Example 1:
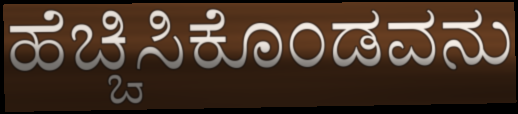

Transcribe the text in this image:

ಹೆಚ್ಚಿಸಿಕೊಂಡವನು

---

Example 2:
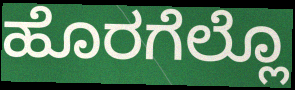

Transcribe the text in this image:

ಹೊರಗೆಲ್ಲೊ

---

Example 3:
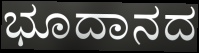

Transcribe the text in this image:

ಭೂದಾನದ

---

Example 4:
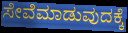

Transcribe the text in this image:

ಸೇವೆಮಾಡುವುದಕ್ಕೆ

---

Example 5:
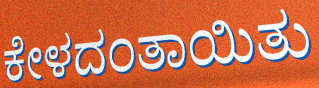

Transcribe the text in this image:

ಕೇಳದಂತಾಯಿತು